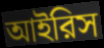
আইরিস